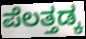
ಪೆಲತ್ತಡ್ಕ